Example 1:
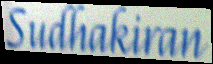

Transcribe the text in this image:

Sudhakiran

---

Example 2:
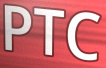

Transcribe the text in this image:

PTC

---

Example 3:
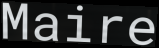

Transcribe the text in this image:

Maire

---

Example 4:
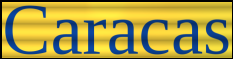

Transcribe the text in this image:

Caracas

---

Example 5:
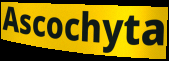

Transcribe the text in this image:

Ascochyta